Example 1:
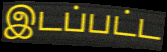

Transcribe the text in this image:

இடப்பட்ட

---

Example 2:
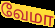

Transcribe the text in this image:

வேமா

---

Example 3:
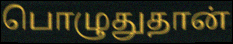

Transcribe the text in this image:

பொழுதுதான்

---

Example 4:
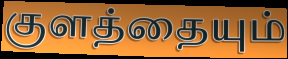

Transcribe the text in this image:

குளத்தையும்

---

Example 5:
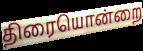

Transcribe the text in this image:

திரையொன்றை